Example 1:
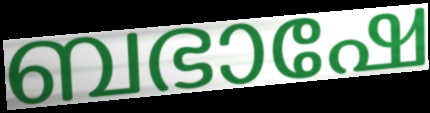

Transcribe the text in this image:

ബഭാഷേ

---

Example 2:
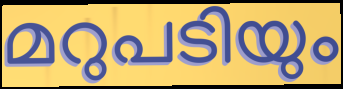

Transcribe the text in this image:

മറുപടിയും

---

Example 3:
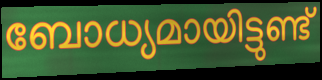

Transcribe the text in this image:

ബോധ്യമായിട്ടുണ്ട്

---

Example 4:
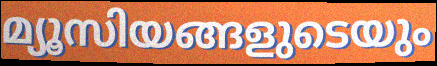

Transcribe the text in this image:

മ്യൂസിയങ്ങളുടെയും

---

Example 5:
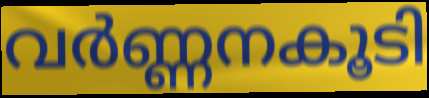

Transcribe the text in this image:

വർണ്ണനകൂടി